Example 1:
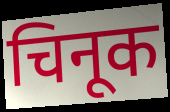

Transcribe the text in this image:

चिनूक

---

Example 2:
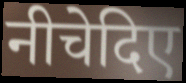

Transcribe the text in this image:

नीचेदिए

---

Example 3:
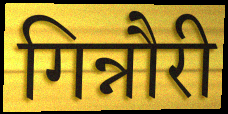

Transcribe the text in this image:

गिन्नौरी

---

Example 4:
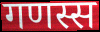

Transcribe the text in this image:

गणस्स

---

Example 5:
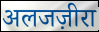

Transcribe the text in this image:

अलजज़ीरा